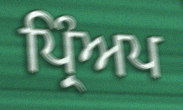
ਪ੍ਰਿੰਅਪ